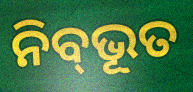
ନିବ୍‌ଭୂତ